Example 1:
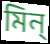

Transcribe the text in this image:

মিন্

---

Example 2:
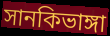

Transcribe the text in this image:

সানকিভাঙ্গা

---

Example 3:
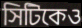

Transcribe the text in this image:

সিটিকেও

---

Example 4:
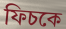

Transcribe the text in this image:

ফিচকে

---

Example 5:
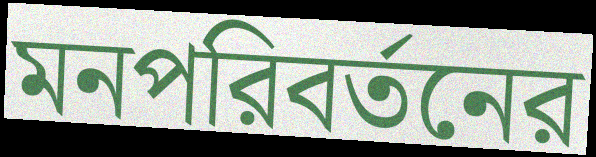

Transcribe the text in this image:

মনপরিবর্তনের